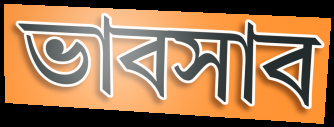
ভাবসাব